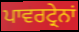
ਪਾਵਰਟ੍ਰੇਨਾਂ